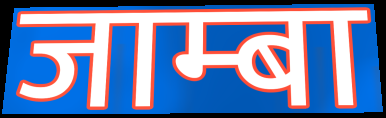
जाम्बा